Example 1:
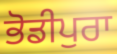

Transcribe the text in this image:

ਭੋਡੀਪੁਰਾ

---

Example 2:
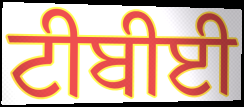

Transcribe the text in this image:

ਟੀਬੀਈ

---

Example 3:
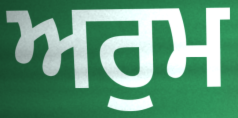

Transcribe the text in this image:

ਅਰੁਮ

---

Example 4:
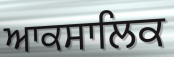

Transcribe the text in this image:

ਆਕਸਾਲਿਕ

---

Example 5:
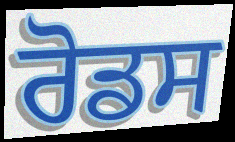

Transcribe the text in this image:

ਰੋਡਸ